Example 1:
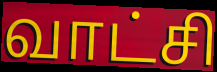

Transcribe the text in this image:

வாட்சி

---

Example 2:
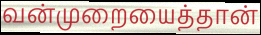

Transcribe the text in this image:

வன்முறையைத்தான்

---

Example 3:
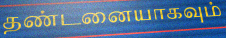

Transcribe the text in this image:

தண்டனையாகவும்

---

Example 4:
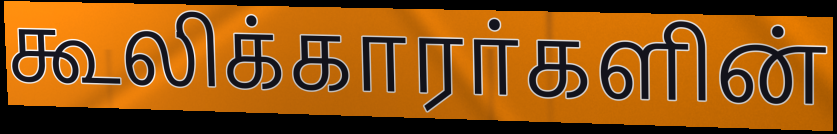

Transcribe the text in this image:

கூலிக்காரர்களின்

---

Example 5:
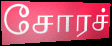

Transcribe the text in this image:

சோரச்